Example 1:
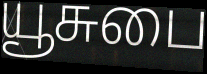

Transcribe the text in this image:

யூசுபை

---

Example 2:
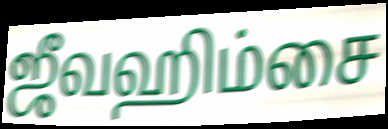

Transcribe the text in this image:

ஜீவஹிம்சை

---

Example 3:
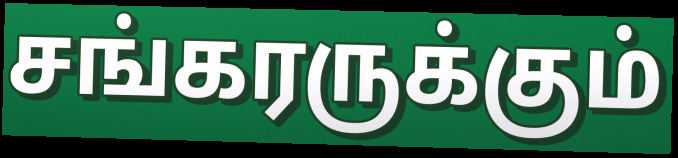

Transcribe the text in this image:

சங்கரருக்கும்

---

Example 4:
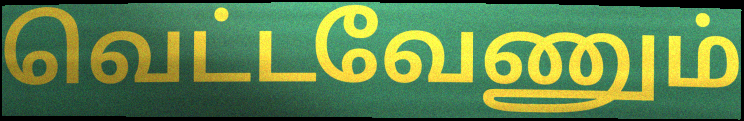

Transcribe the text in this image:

வெட்டவேணும்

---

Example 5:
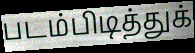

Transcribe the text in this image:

படம்பிடித்துக்